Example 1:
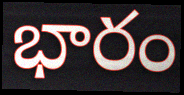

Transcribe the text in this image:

భారం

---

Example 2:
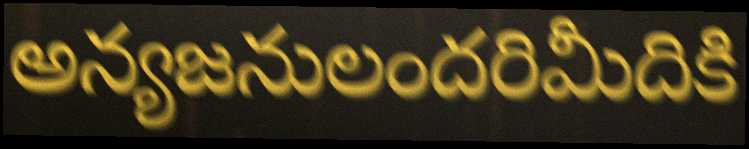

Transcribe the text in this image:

అన్యజనులందరిమీదికి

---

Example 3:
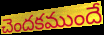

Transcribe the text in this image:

చెందకముందే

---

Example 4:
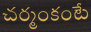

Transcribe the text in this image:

చర్మంకంటే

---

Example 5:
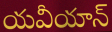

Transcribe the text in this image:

యవీయాన్